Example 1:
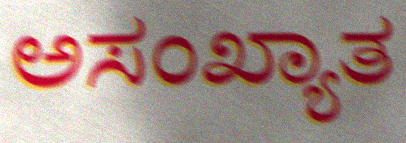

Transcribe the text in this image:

ಅಸಂಖ್ಯಾತ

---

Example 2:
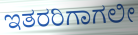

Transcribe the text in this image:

ಇತರರಿಗಾಗಲೀ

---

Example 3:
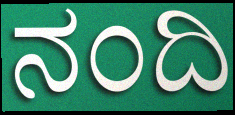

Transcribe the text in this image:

ನಂದಿ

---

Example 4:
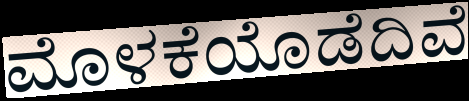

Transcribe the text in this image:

ಮೊಳಕೆಯೊಡೆದಿವೆ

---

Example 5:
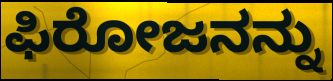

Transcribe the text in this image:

ಫಿರೋಜನನ್ನು